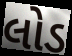
લોડ